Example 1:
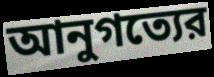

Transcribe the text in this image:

আনুগত্যের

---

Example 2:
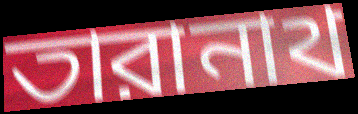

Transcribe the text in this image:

তারানাথ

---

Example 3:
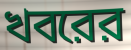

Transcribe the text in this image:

খবরের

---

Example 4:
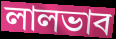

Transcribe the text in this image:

লালভাব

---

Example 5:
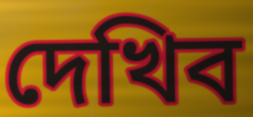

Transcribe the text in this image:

দেখিব